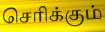
செரிக்கும்